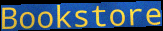
Bookstore